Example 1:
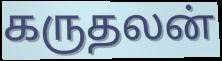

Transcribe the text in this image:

கருதலன்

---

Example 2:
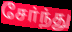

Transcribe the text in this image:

சேர்ந்து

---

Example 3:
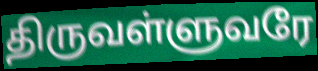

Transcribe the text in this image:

திருவள்ளுவரே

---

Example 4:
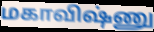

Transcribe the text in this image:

மகாவிஷ்ணு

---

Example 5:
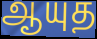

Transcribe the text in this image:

ஆயுத